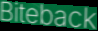
Biteback